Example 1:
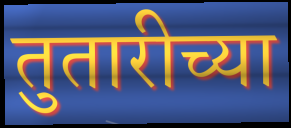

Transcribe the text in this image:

तुतारीच्या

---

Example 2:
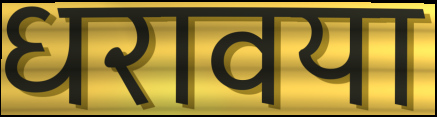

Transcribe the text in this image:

धरावया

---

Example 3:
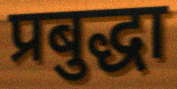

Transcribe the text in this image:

प्रबुद्धा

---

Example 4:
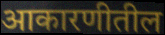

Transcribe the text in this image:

आकारणीतील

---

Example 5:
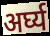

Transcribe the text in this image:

अर्घ्य